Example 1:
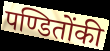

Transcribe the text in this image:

पण्डितोंकी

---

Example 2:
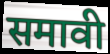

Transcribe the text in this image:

समावी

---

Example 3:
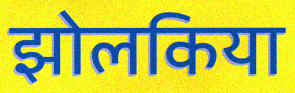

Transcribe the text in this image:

झोलकिया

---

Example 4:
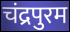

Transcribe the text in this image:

चंद्रपुरम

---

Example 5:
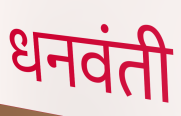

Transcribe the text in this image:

धनवंती